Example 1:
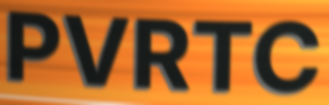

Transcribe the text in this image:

PVRTC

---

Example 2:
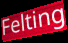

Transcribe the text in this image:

Felting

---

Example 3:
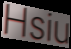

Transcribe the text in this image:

Hsiu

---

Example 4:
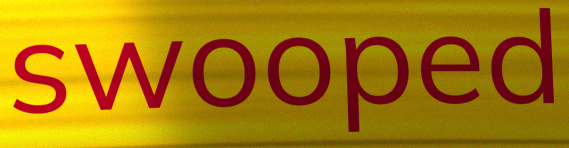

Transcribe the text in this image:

swooped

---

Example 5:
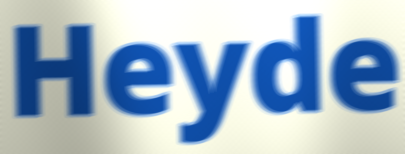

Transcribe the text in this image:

Heyde